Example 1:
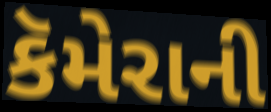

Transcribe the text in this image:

કૅમેરાની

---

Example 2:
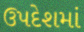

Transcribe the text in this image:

ઉપદેશમાં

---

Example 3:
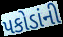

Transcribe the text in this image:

પકોડાંની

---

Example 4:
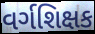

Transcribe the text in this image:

વર્ગશિક્ષક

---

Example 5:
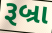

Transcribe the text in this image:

રૂબ્રા